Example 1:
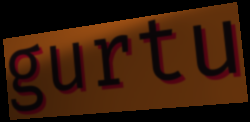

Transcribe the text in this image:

gurtu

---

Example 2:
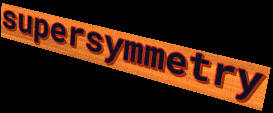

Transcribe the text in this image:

supersymmetry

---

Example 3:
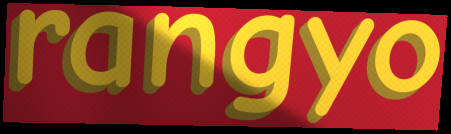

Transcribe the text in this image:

rangyo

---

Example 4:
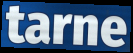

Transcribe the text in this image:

tarne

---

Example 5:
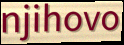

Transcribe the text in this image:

njihovo